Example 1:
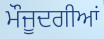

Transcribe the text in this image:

ਮੌਜੂਦਗੀਆਂ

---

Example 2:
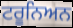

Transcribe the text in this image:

ਟਰੂਨਿਅਨ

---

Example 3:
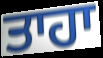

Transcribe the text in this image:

ਤਾਹਾ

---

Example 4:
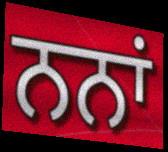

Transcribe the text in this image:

ਨਨਾਂ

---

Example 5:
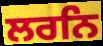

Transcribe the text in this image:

ਲਰਨਿ